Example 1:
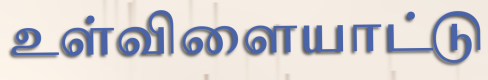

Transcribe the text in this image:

உள்விளையாட்டு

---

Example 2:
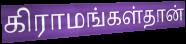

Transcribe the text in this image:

கிராமங்கள்தான்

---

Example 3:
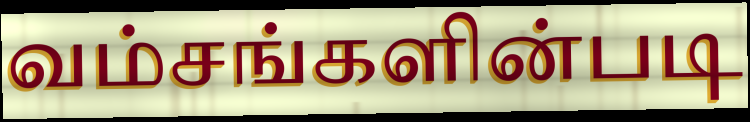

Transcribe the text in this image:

வம்சங்களின்படி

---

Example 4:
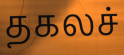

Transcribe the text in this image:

தகலச்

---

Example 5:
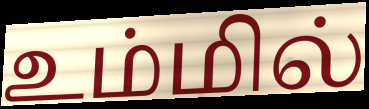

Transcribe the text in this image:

உம்மில்